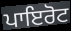
ਪਾਇਰੋਟ